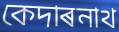
কেদাৰনাথ